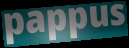
pappus